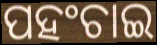
ପହଂଚାଇ